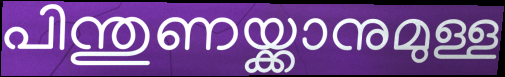
പിന്തുണയ്ക്കാനുമുള്ള